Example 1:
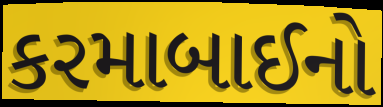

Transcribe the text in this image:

કરમાબાઈનો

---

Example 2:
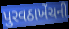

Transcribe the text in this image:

પુરવઠાખેંચની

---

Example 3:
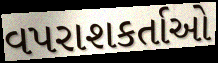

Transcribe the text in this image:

વપરાશકર્તાઓ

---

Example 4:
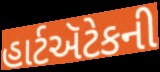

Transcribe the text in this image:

હાર્ટઍટેકની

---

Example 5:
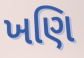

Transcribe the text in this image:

ખણિ